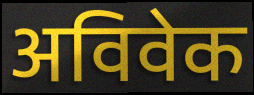
अविवेक